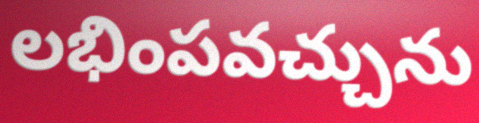
లభింపవచ్చును